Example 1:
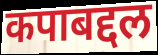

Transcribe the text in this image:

कपाबद्दल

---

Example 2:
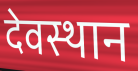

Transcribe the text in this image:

देवस्थान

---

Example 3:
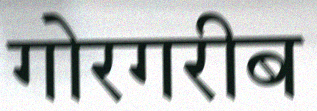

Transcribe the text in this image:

गोरगरीब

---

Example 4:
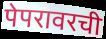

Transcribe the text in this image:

पेपरावरची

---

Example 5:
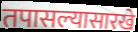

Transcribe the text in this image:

तपासल्यासारखे